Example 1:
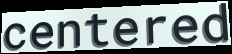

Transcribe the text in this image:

centered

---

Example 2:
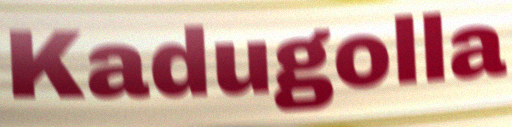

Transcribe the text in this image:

Kadugolla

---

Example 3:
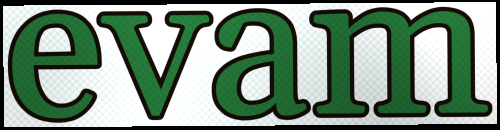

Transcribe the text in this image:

evam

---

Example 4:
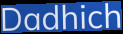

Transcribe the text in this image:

Dadhich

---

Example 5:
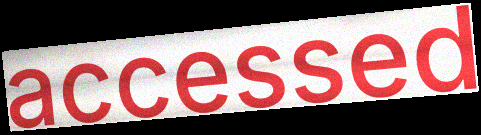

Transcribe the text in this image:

accessed